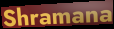
Shramana